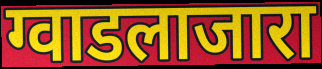
ग्वाडलाजारा